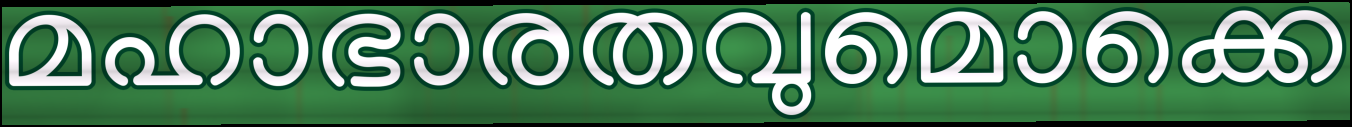
മഹാഭാരതവുമൊക്കെ